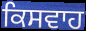
ਕਿਸਵਾਹ